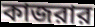
কাজরার